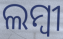
ଲମ୍ବୀ